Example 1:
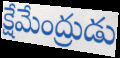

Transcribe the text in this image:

క్షేమేంద్రుడు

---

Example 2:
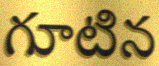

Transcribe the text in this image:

గూటిన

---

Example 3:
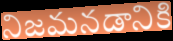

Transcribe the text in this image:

నిజమనడానికి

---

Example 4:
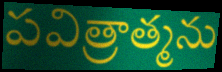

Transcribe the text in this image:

పవిత్రాత్మను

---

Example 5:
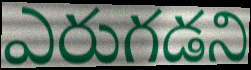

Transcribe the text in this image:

ఎరుగడని